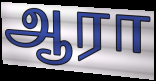
ஆரா